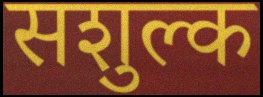
सशुल्क